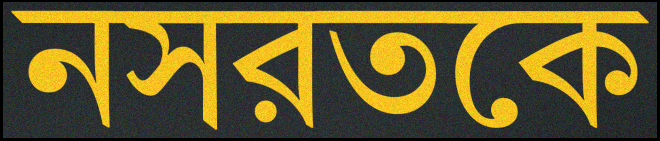
নসরতকে